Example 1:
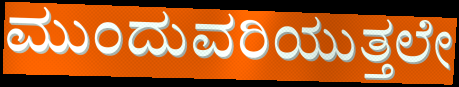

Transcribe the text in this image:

ಮುಂದುವರಿಯುತ್ತಲೇ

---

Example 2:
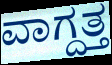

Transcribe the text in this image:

ವಾಗ್ದತ್ತ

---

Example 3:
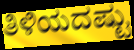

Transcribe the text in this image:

ತಿಳಿಯದಷ್ಟು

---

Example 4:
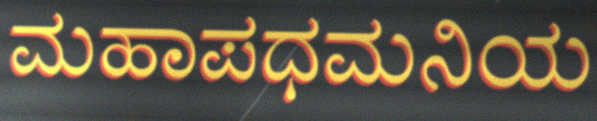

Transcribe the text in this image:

ಮಹಾಪಧಮನಿಯ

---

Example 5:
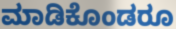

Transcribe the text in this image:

ಮಾಡಿಕೊಂಡರೂ